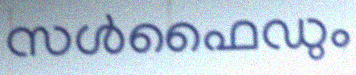
സൾഫൈഡും